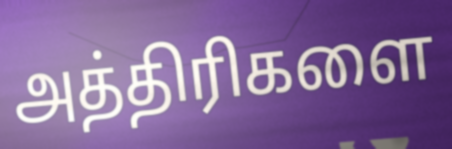
அத்திரிகளை